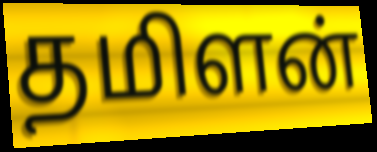
தமிளன்